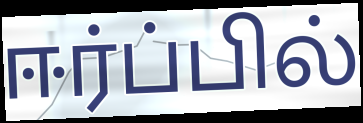
ஈர்ப்பில்